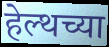
हेल्थच्या